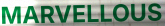
MARVELLOUS